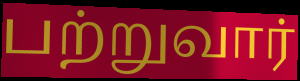
பற்றுவார்